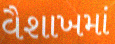
વૈશાખમાં